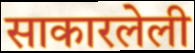
साकारलेली